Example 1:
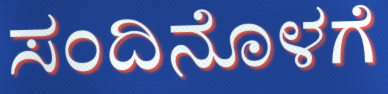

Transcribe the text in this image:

ಸಂದಿನೊಳಗೆ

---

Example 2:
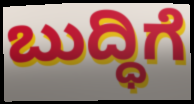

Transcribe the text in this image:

ಬುದ್ಧಿಗೆ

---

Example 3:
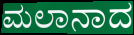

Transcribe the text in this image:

ಮಲಾನಾದ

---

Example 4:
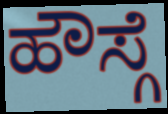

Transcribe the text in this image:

ಹೌಸ್ಗೆ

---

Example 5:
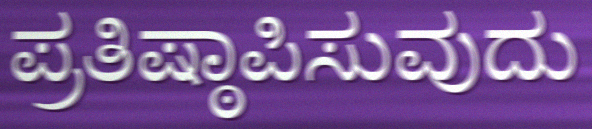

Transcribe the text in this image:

ಪ್ರತಿಷ್ಠಾಪಿಸುವುದು